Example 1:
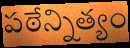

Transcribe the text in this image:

పఠేన్నిత్యం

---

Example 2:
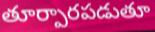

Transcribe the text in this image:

తూర్పారపడుతూ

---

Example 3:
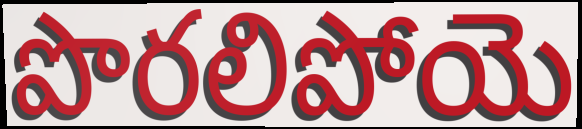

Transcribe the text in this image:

పొరలిపోయె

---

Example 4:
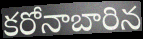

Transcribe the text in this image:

కరోనాబారిన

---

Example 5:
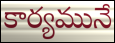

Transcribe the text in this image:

కార్యమునే